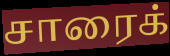
சாரைக்